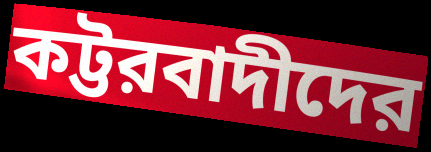
কট্টরবাদীদের